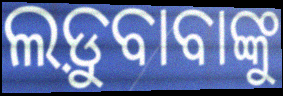
ଲଡ଼ୁବାବାଙ୍କୁ